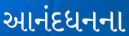
આનંદધનના